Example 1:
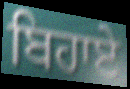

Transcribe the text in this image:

ਬਿਹਾਏ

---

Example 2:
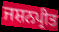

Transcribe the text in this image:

ਜਸ਼ਨਪ੍ਰੀਤ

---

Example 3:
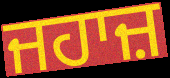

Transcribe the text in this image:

ਜਹਾਜ਼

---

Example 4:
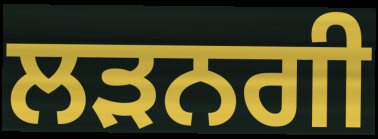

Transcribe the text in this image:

ਲੜਨਗੀ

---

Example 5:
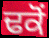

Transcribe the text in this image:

ਢਕੋਂ